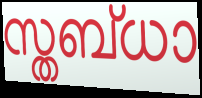
സ്തബ്ധാ